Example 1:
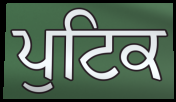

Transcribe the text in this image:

ਪੁਟਿਕ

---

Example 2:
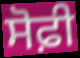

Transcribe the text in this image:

ਸੋਫ਼ੀ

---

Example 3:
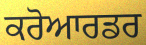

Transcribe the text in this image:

ਕਰੋਆਰਡਰ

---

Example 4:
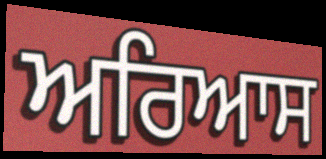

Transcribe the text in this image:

ਅਰਿਆਸ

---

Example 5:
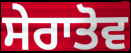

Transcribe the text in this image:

ਸੇਰਾਤੋਵ